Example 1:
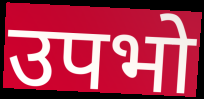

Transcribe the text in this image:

उपभो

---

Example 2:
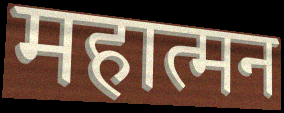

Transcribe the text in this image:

महात्मन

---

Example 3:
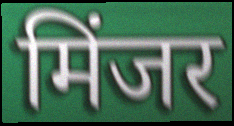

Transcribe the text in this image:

मिंजर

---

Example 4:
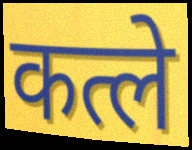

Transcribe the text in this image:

कत्ले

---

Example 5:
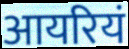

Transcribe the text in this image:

आयरियं